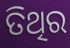
ତିଥିର